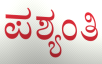
ಪಶ್ಯಂತಿ